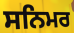
ਸਨਿਮਰ